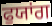
ਫੁਯਾਂਗ